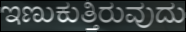
ಇಣುಕುತ್ತಿರುವುದು